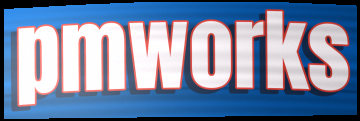
pmworks